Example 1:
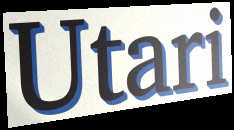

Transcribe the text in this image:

Utari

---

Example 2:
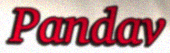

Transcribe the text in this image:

Pandav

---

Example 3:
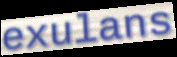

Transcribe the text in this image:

exulans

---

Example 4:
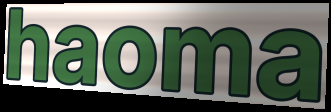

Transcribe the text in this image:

haoma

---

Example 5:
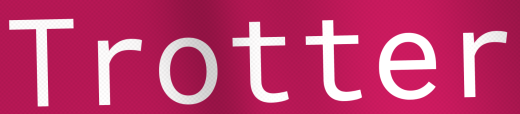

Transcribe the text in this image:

Trotter